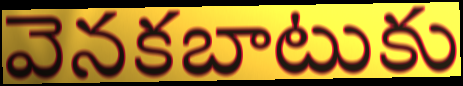
వెనకబాటుకు